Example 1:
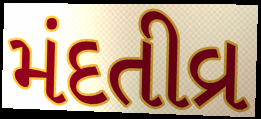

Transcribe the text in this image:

મંદતીવ્ર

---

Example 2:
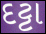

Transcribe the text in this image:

દટ્ટા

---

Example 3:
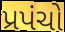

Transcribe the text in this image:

પ્રપંચો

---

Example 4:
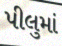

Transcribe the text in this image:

પીલુમાં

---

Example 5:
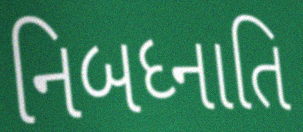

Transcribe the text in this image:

નિબધ્નાતિ